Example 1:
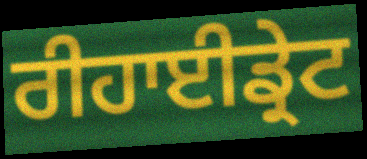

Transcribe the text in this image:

ਰੀਹਾਈਡ੍ਰੇਟ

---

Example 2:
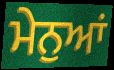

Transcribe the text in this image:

ਮੇਨੁਆਂ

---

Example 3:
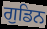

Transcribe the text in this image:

ਗੁਡਿਨ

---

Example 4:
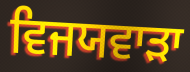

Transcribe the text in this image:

ਵਿਜਯਵਾੜਾ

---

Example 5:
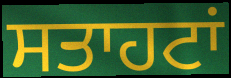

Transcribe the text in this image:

ਸਤਾਹਟਾਂ